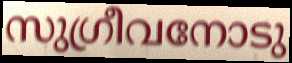
സുഗ്രീവനോടു